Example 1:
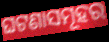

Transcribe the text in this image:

ଘଟଣାସମୂହର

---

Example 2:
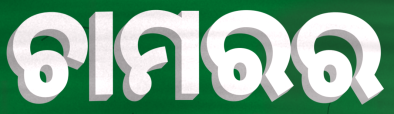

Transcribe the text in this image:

ଚାମରର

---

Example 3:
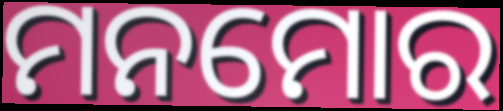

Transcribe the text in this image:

ମନମୋର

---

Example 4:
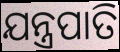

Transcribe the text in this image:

ଯନ୍ତ୍ରପାତି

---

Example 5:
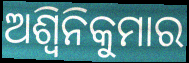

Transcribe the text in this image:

ଅଶ୍ୱିନିକୁମାର